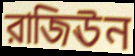
রাজিঊন